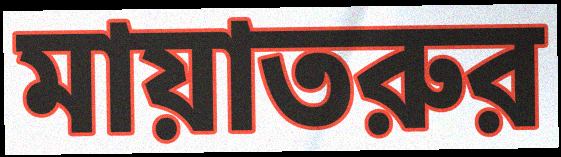
মায়াতরুর